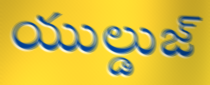
యుల్డుజ్